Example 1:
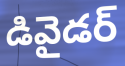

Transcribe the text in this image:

డివైడర్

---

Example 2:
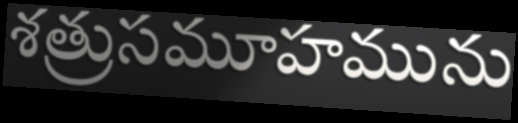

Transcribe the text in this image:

శత్రుసమూహమును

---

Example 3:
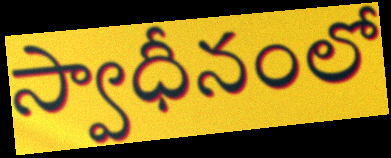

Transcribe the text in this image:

స్వాధీనంలో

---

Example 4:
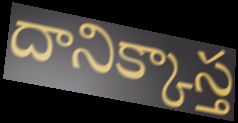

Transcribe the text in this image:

దానిక్కాస్త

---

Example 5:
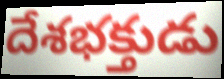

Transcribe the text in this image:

దేశభక్తుడు